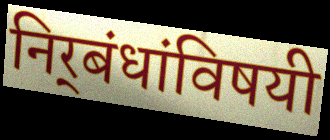
निर्बंधांविषयी